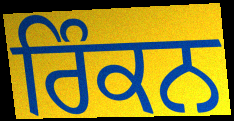
ਰਿੰਕਨ